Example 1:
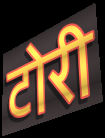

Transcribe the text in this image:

टोरी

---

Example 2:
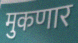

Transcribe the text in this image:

मुकणार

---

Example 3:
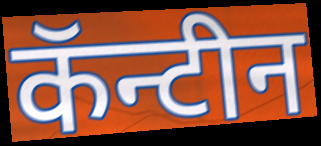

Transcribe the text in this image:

कॅन्टीन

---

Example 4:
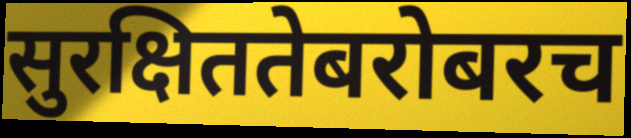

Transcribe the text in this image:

सुरक्षिततेबरोबरच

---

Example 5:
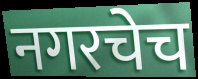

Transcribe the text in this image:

नगरचेच